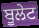
ਬੂਲੇਟ